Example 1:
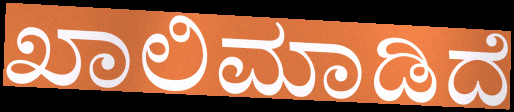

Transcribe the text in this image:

ಖಾಲಿಮಾಡಿದೆ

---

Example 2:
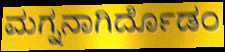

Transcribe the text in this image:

ಮಗ್ನನಾಗಿರ್ದೊಡಂ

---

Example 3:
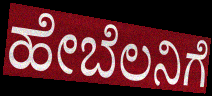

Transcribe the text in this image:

ಹೇಬೆಲನಿಗೆ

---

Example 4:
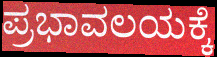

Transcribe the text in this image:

ಪ್ರಭಾವಲಯಕ್ಕೆ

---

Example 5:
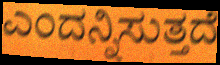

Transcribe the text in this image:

ಎಂದನ್ನಿಸುತ್ತದೆ